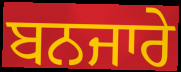
ਬਨਜਾਰੇ